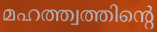
മഹത്ത്വത്തിന്റെ